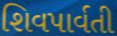
શિવપાર્વતી